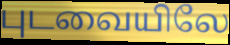
புடவையிலே